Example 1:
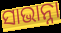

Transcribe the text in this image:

ସାଭାନ୍ନା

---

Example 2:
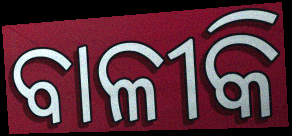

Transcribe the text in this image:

ବାଳୀକି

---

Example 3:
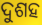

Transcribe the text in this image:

ଦୁଶହ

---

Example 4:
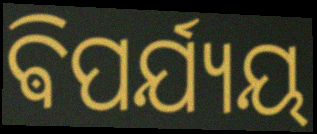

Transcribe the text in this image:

ଵିପର୍ଯ୍ୟୟ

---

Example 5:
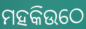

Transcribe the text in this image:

ମହକିଉଠେ